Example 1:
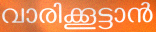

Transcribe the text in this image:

വാരിക്കൂട്ടാൻ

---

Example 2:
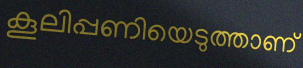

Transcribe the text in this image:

കൂലിപ്പണിയെടുത്താണ്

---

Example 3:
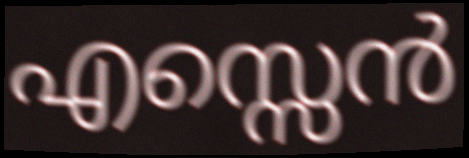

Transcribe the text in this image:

എസ്സെൻ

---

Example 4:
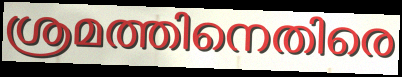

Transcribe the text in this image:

ശ്രമത്തിനെതിരെ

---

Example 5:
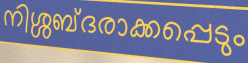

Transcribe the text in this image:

നിശ്ശബ്ദരാക്കപ്പെടും